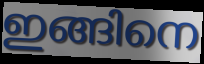
ഇങ്ങിനെ